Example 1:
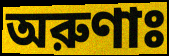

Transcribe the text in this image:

অরুণাঃ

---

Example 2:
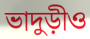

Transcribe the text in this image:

ভাদুড়ীও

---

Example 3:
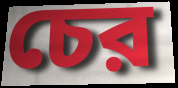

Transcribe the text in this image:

চের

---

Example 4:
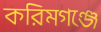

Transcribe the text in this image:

করিমগঞ্জে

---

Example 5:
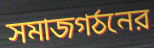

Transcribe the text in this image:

সমাজগঠনের